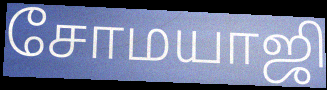
சோமயாஜி